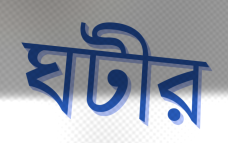
ঘটীর